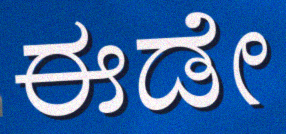
ಈಡೇ